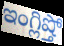
ఇంగ్లిష్తో